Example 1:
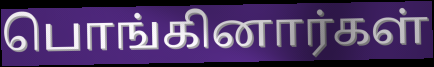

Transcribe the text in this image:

பொங்கினார்கள்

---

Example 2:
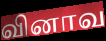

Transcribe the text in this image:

வினாவ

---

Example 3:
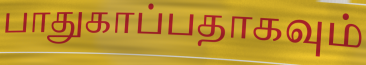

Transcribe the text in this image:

பாதுகாப்பதாகவும்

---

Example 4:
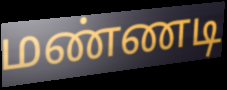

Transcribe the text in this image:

மண்ணடி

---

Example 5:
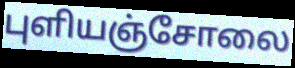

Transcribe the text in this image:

புளியஞ்சோலை